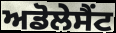
ਅਡੋਲੇਸੈਂਟ